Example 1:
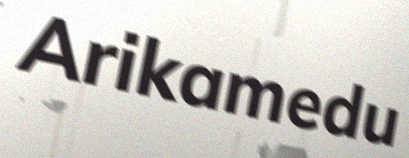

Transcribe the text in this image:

Arikamedu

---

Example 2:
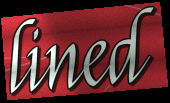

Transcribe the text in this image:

lined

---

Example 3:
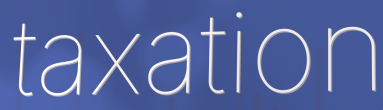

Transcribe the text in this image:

taxation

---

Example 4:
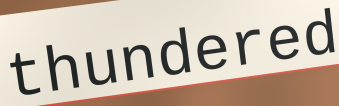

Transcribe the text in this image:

thundered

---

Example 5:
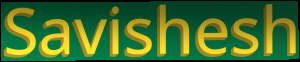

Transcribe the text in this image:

Savishesh